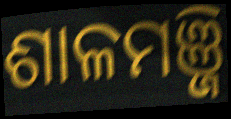
ଶାଳମଞ୍ଜି